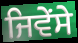
ਜਿਵੇਂਸੇ